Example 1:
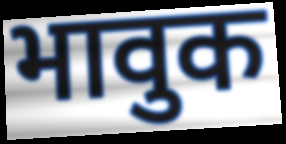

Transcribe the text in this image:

भावुक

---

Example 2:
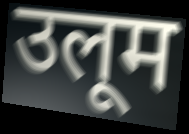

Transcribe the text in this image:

उलूम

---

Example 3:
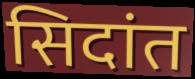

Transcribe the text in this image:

सिदांत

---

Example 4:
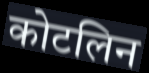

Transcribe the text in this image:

कोटलिन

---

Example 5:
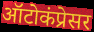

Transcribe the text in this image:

ऑटोकंप्रेसर